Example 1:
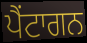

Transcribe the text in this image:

ਪੈਂਟਾਗਨ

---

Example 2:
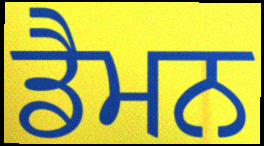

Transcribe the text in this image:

ਡੈਮਨ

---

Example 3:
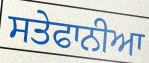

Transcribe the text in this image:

ਸਤੇਫਾਨੀਆ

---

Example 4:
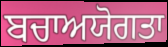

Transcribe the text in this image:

ਬਚਾਅਯੋਗਤਾ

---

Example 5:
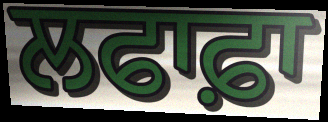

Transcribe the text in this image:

ਲਫਾਫ਼ਾ